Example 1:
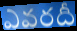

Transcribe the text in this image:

ఎవరదీ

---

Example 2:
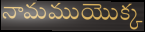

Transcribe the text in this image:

నామముయొక్క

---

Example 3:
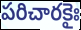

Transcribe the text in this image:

పరిచారకైః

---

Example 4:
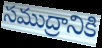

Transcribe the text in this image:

సముద్రానికి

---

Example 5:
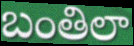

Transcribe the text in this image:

బంతిలా